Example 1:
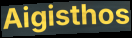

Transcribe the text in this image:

Aigisthos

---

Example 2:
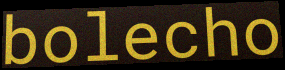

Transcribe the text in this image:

bolecho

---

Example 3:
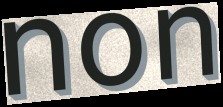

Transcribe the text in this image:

non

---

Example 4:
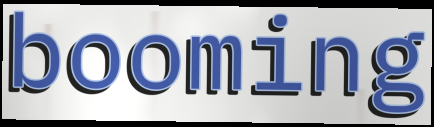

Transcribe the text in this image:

booming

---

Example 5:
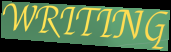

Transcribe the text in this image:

WRITING